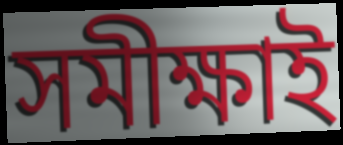
সমীক্ষাই